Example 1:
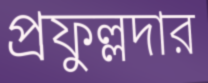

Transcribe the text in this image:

প্রফুল্লদার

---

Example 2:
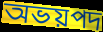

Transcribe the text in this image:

অভয়পদ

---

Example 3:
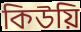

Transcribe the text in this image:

কিউয়ি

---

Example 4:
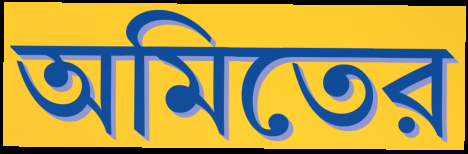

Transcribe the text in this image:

অমিতের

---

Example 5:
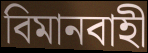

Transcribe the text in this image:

বিমানবাহী